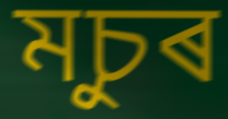
মচুৰ